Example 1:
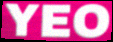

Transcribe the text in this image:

YEO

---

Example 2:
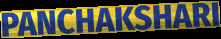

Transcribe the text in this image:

PANCHAKSHARI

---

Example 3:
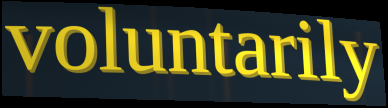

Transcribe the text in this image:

voluntarily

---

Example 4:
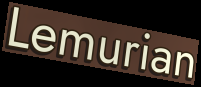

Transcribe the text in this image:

Lemurian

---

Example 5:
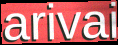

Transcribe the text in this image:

arivai